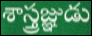
శాస్త్రజ్ఞుడు